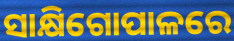
ସାକ୍ଷିଗୋପାଳରେ